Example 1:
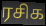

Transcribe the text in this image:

ரசிக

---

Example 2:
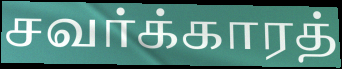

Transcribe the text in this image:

சவர்க்காரத்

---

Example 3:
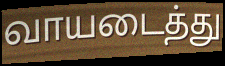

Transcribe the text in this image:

வாயடைத்து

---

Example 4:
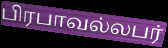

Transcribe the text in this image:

பிரபாவல்லபர்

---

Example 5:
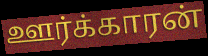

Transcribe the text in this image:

ஊர்க்காரன்